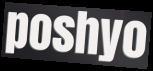
poshyo